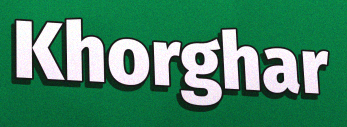
Khorghar